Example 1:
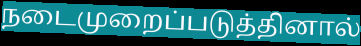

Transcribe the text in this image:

நடைமுறைப்படுத்தினால்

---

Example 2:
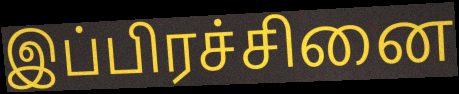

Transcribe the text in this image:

இப்பிரச்சினை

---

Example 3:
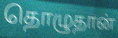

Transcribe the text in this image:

தொழுதான்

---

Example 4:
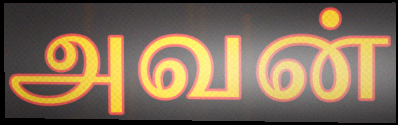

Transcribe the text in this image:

அவன்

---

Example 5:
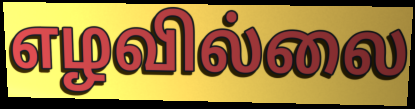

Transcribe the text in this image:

எழவில்லை